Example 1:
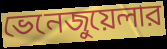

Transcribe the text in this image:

ভেনেজুয়েলার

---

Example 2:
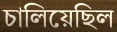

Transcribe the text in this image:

চালিয়েছিল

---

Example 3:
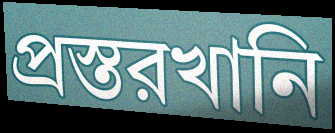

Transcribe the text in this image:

প্রস্তরখানি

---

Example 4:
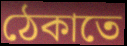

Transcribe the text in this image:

ঠেকাতে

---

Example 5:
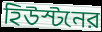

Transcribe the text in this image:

হিউস্টনের